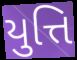
યુત્તિ